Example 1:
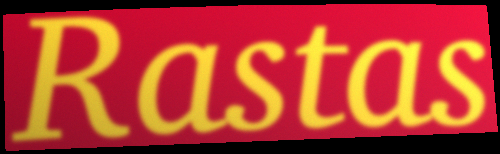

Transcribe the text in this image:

Rastas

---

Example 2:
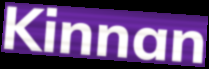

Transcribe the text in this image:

Kinnan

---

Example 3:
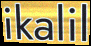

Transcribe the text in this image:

ikalil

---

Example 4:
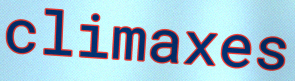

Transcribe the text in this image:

climaxes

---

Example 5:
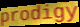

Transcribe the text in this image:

prodigy